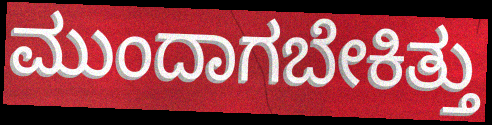
ಮುಂದಾಗಬೇಕಿತ್ತು